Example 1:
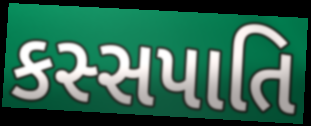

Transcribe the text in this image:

કસ્સપાતિ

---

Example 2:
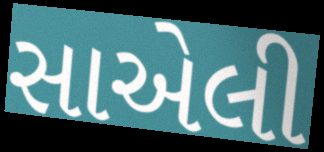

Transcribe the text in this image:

સાએલી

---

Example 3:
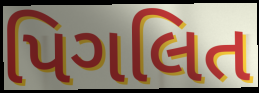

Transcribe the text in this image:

પિગલિત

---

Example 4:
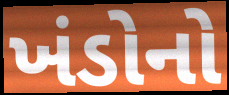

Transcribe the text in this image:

ખંડોનો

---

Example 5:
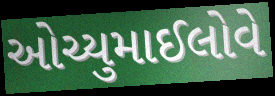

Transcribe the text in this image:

ઓચ્યુમાઈલોવે